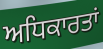
ਅਧਿਕਾਰਤਾਂ